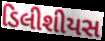
ડિલીશીયસ